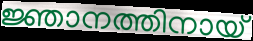
ജ്ഞാനത്തിനായ്